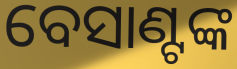
ବେସାଣ୍ଟଙ୍କ